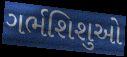
ગર્ભશિશુઓ